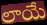
లాయే